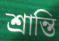
শ্রান্তি